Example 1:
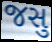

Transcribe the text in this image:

જસુ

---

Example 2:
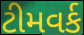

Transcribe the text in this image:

ટીમવર્ક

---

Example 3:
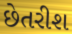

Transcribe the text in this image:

છેતરીશ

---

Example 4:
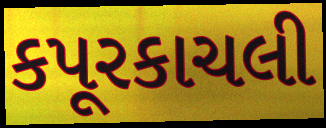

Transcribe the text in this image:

કપૂરકાચલી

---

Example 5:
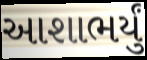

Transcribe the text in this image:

આશાભર્યું